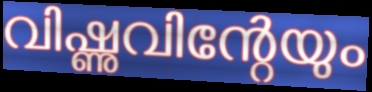
വിഷ്ണുവിന്റേയും